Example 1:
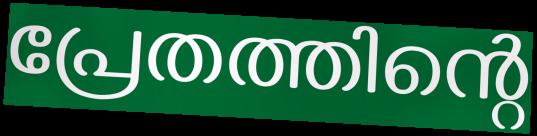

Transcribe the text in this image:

പ്രേതത്തിന്റെ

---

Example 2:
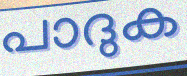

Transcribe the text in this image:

പാദുക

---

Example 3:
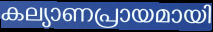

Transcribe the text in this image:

കല്യാണപ്രായമായി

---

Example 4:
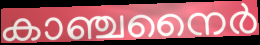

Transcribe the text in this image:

കാഞ്ചനൈർ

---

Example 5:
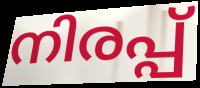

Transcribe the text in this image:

നിരപ്പ്